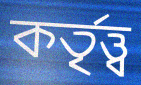
কর্তৃত্ত্ব